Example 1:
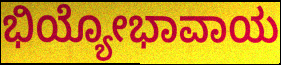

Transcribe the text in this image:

ಭಿಯ್ಯೋಭಾವಾಯ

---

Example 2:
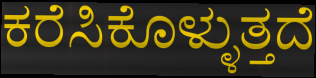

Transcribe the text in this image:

ಕರೆಸಿಕೊಳ್ಳುತ್ತದೆ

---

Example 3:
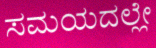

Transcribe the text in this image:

ಸಮಯದಲ್ಲೇ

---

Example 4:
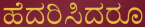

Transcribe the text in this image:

ಹೆದರಿಸಿದರೂ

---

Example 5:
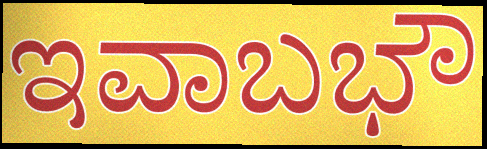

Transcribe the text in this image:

ಇವಾಬಭೌ